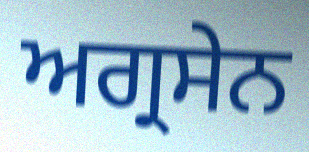
ਅਗ੍ਰਸੇਨ